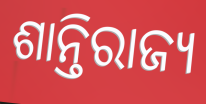
ଶାନ୍ତିରାଜ୍ୟ